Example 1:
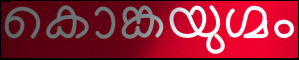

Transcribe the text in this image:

കൊങ്കയുഗ്മം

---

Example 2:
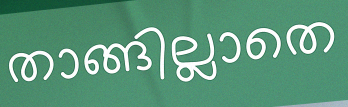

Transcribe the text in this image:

താങ്ങില്ലാതെ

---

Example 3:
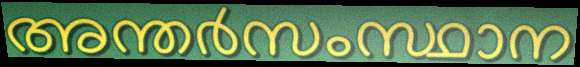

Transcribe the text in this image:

അന്തർസംസ്ഥാന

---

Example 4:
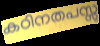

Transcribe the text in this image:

കഠിനതപസ്സു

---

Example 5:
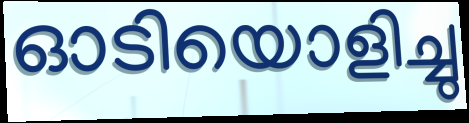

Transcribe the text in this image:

ഓടിയൊളിച്ചു